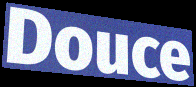
Douce